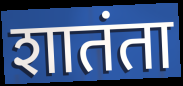
शातंता